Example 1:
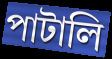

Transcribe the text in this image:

পাটালি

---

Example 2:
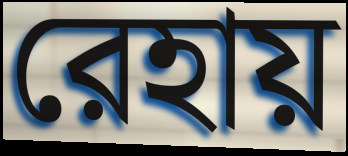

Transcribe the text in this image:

রেহায়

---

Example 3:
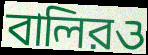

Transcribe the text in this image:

বালিরও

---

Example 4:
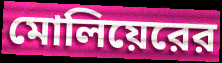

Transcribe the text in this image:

মোলিয়েরের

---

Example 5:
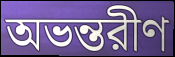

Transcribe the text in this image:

অভন্তরীণ